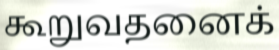
கூறுவதனைக்